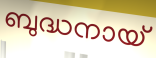
ബുദ്ധനായ്